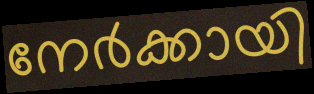
നേർക്കായി